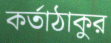
কর্তাঠাকুর